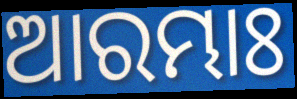
ଆରମ୍ଭାଃ